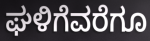
ಘಳಿಗೆವರೆಗೂ